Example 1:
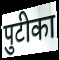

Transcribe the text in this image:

पुटीका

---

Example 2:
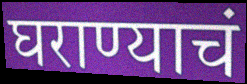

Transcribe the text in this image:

घराण्याचं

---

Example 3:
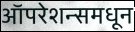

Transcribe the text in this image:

ऑपरेशन्समधून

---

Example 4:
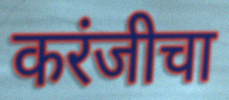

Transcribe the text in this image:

करंजीचा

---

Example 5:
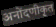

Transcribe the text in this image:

अनोंदणीकृत